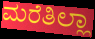
ಮರೆತಿಲ್ಲಾ